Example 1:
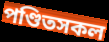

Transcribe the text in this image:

পণ্ডিতসকল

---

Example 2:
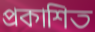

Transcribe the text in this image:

প্ৰকাশিত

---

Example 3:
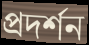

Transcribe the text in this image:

প্ৰদৰ্শন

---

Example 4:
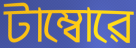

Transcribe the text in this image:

টাম্বোৱে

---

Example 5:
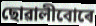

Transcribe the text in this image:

ছোৱালীবোৰে